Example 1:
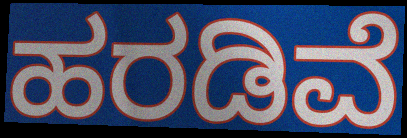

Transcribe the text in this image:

ಹರಡಿವೆ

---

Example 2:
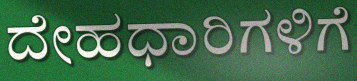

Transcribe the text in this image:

ದೇಹಧಾರಿಗಳಿಗೆ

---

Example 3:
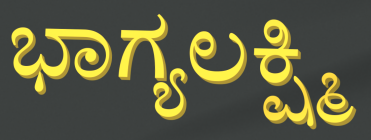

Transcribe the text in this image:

ಭಾಗ್ಯಲಕ್ಷ್ಮಿ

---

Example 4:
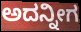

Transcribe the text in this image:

ಅದನ್ನೀಗ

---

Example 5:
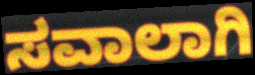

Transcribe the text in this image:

ಸವಾಲಾಗಿ